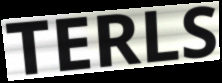
TERLS